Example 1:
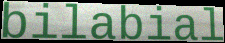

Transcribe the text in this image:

bilabial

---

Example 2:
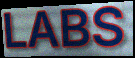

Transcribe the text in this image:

LABS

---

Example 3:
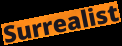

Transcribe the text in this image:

Surrealist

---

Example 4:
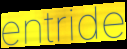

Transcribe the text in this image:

entride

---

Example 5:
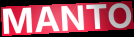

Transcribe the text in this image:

MANTO